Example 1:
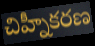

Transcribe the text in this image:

చిహ్నీకరణ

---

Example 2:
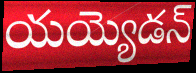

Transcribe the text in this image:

యయ్యెడన్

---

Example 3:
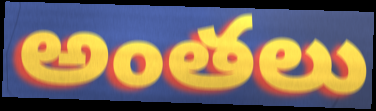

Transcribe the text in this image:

అంతలు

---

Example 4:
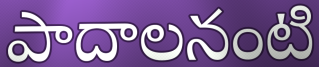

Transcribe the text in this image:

పాదాలనంటి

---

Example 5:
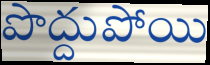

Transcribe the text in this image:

పొద్దుపోయి